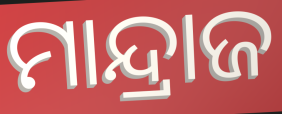
ମାନ୍ଦ୍ରାଜ